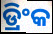
ଡ୍ରିଂକ